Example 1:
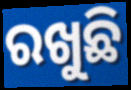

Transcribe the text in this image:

ରଖୁଛି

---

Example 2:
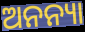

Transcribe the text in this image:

ଅନନ୍ୟା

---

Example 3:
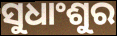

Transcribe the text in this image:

ସୁଧାଂଶୁର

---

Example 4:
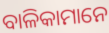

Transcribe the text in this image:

ବାଳିକାମାନେ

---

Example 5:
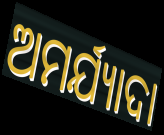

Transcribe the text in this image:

ଅମର୍ଯ୍ୟାଦା